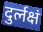
दुर्लक्षं